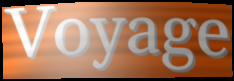
Voyage